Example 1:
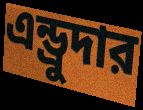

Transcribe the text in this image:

এন্ড্রুদার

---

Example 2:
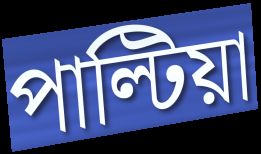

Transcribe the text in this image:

পাল্টিয়া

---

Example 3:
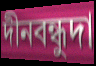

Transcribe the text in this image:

দীনবন্ধুদা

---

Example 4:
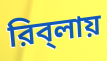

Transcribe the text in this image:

রিব্‌লায়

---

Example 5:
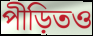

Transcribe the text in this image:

পীড়িতও